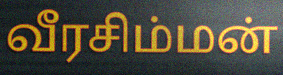
வீரசிம்மன்